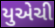
યુએચી